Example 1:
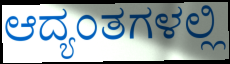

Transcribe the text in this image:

ಆದ್ಯಂತಗಳಲ್ಲಿ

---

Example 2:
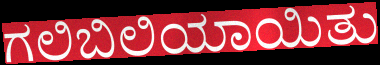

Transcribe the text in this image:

ಗಲಿಬಿಲಿಯಾಯಿತು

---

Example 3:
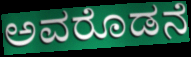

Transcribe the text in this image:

ಅವರೊಡನೆ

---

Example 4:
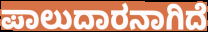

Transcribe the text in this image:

ಪಾಲುದಾರನಾಗಿದೆ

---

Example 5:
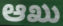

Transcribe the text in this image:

ಆಖು